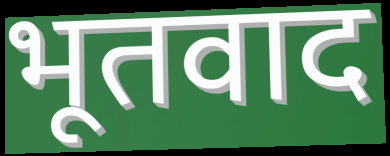
भूतवाद